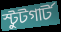
স্টুটগার্ট